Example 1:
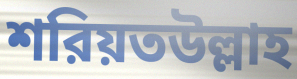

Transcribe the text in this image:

শরিয়তউল্লাহ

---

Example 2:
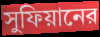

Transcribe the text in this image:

সুফিয়ানের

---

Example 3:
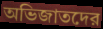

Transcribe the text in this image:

অভিজাতদের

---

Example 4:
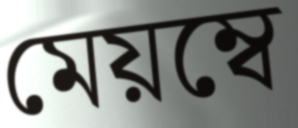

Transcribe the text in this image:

মেয়ম্বে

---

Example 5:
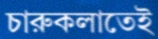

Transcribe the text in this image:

চারুকলাতেই